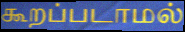
கூறப்படாமல்